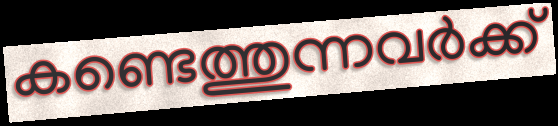
കണ്ടെത്തുന്നവർക്ക്